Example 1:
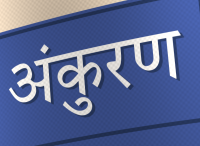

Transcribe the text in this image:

अंकुरण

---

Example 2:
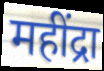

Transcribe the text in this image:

महींद्रा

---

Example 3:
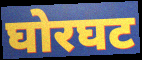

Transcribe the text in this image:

घोरघट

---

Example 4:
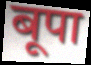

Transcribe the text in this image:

बूपा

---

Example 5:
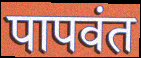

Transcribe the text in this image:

पापवंत